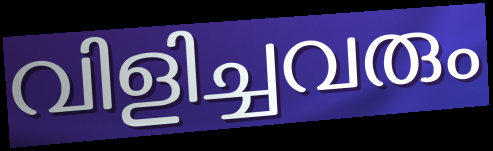
വിളിച്ചവരും